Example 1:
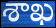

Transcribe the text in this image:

శాఖ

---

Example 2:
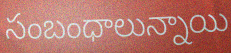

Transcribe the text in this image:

సంబంధాలున్నాయి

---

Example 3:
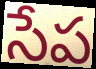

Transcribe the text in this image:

సేప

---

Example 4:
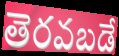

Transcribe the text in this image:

తెరవబడే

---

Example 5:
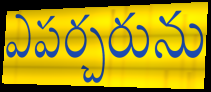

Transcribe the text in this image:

ఎపర్చరును